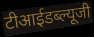
टीआईडब्ल्यूजी